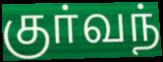
குர்வந்